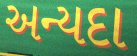
અન્યદા